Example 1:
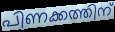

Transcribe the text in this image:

പിണക്കത്തിന്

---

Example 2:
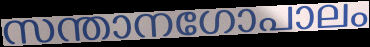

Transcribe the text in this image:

സന്താനഗോപാലം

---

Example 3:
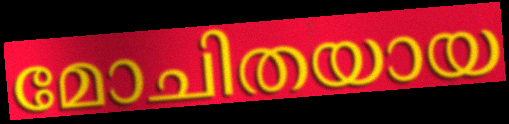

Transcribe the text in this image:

മോചിതയായ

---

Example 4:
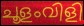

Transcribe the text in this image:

ചൂളംവിളി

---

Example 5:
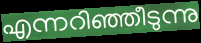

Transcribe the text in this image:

എന്നറിഞ്ഞീടുന്നു